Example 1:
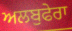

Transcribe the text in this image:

ਅਲਬੁਫੇਰਾ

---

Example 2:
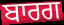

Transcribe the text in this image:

ਬਾਰਗ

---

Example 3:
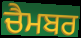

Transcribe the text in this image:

ਚੈਮਬਰ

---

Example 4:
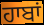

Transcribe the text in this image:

ਹਾਬਾਂ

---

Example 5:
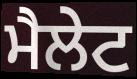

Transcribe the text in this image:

ਮੈਲੇਟ